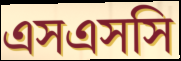
এসএসসি